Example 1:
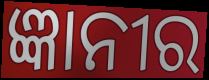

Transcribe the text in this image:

ଜ୍ଞାନୀର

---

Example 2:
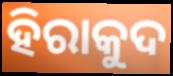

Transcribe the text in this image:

ହିରାକୁଦ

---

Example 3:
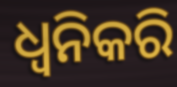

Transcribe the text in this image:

ଧ୍ୱନିକରି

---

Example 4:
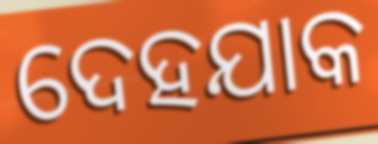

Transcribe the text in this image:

ଦେହଯାକ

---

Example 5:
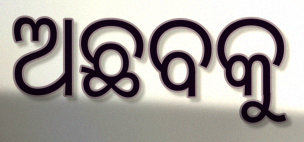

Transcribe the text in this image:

ଅଛବକୁ